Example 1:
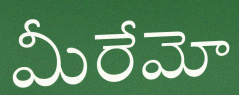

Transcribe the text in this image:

మీరేమో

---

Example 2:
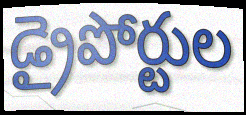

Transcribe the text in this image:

డ్రైపోర్టుల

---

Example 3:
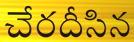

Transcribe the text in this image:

చేరదీసిన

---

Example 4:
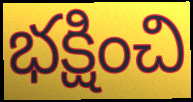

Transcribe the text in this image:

భక్షించి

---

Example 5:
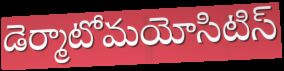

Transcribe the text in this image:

డెర్మాటోమయోసిటిస్